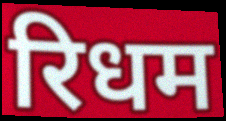
रिधम